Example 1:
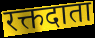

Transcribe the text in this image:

रक्तदाता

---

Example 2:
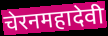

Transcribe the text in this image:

चेरनमहादेवी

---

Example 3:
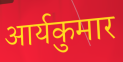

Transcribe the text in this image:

आर्यकुमार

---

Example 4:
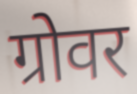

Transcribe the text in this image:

ग्रोवर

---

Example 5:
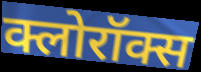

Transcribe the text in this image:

क्लोरॉक्स